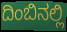
ದಿಂಬಿನಲ್ಲಿ